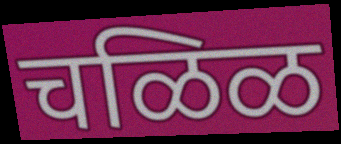
चळिळ